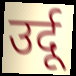
उर्दू